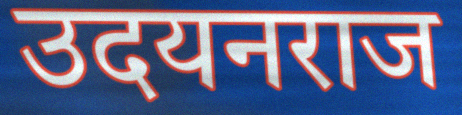
उदयनराज